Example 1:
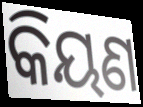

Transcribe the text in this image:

କିୟଣ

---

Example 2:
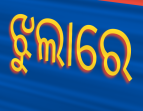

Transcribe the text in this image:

ଝୁଲାରେ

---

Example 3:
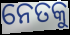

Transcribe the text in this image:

ନେତକୁ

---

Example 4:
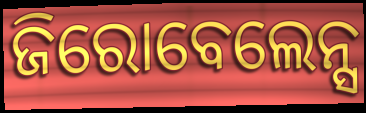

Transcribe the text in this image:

ଜିରୋବେଲେନ୍ସ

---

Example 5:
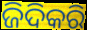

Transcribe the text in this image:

ଜିଦିକରି